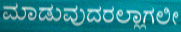
ಮಾಡುವುದರಲ್ಲಾಗಲೀ